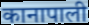
कानापाली